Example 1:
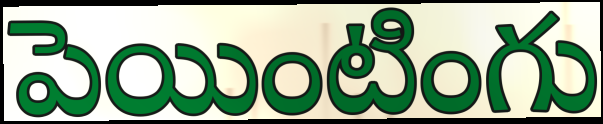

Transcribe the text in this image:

పెయింటింగు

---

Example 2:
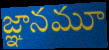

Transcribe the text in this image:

జ్ఞానమూ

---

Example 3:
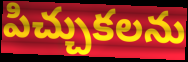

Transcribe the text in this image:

పిచ్చుకలను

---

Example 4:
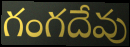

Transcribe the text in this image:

గంగదేవు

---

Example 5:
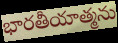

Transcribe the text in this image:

భారతీయాత్మను